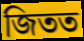
জিতত